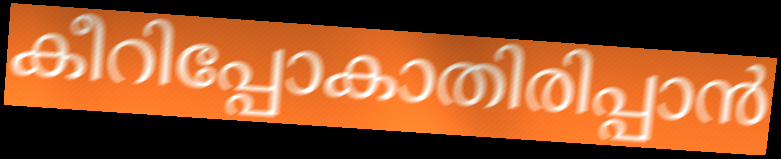
കീറിപ്പോകാതിരിപ്പാൻ